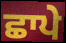
ਛਾਪੇ